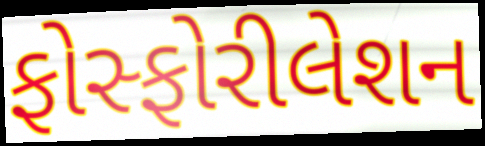
ફોસ્ફોરીલેશન